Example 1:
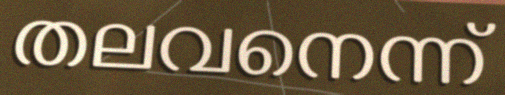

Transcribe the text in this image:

തലവനെന്ന്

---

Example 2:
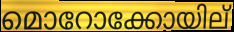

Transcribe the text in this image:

മൊറോക്കോയില്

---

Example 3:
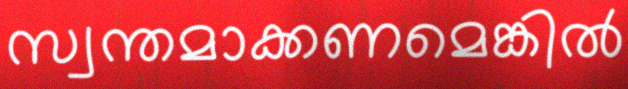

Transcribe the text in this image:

സ്വന്തമാക്കണമെങ്കിൽ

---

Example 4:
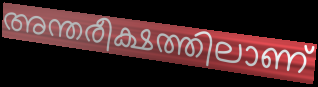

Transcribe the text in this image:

അന്തരീക്ഷത്തിലാണ്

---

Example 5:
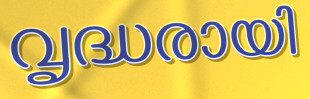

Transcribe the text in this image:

വൃദ്ധരായി